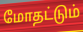
மோதட்டும்